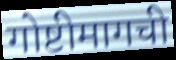
गोष्टीमागची